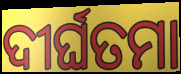
ଦୀର୍ଘତମା